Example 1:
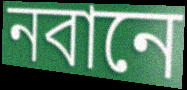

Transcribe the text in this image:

নবানে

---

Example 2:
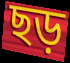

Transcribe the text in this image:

ছড়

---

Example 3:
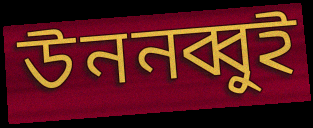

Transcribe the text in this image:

উননব্বুই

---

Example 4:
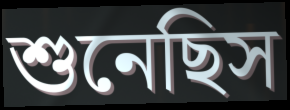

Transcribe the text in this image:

শুনেছিস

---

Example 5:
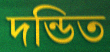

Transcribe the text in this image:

দন্ডিত